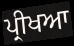
ਪ੍ਰੀਖਆ